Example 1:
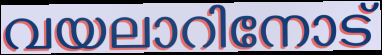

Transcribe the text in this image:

വയലാറിനോട്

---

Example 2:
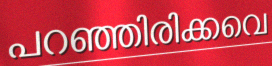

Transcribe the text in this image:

പറഞ്ഞിരിക്കവെ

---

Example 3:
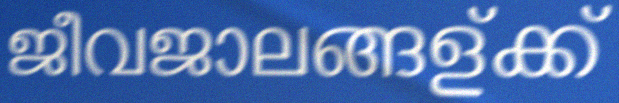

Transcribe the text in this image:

ജീവജാലങ്ങള്ക്ക്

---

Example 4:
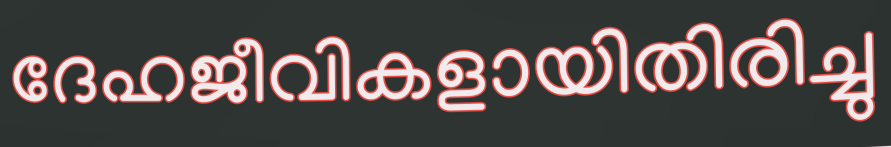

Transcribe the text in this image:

ദേഹജീവികളായിതിരിച്ചു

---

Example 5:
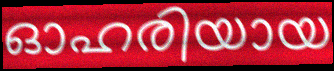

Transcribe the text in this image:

ഓഹരിയായ